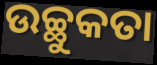
ଉଚ୍ଛୁକତା